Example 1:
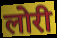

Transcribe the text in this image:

लोरी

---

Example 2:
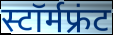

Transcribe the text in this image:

स्टॉर्मफ्रंट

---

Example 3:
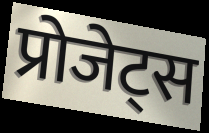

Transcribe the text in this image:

प्रोजेट्स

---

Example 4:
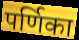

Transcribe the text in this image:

पर्णिका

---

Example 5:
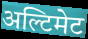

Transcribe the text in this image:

अल्टिमेट